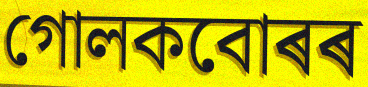
গোলকবোৰৰ